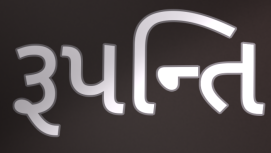
રૂપન્તિ